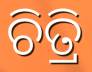
ଚିତ୍ରି